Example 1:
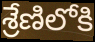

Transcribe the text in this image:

శ్రేణిలోకి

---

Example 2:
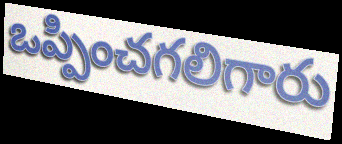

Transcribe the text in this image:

ఒప్పించగలిగారు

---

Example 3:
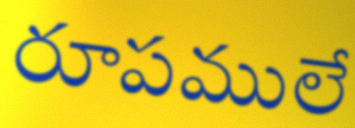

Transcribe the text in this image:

రూపములే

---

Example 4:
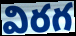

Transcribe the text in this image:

విరగ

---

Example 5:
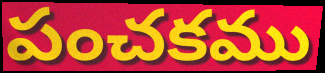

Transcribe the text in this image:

పంచకము